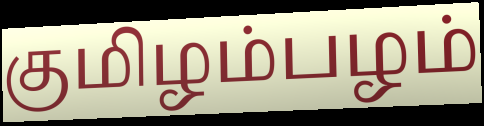
குமிழம்பழம்